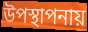
উপস্থাপনায়